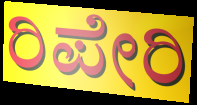
ರಿಪೇರಿ